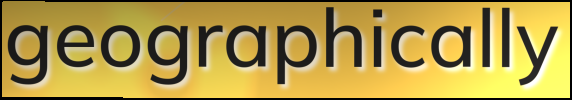
geographically